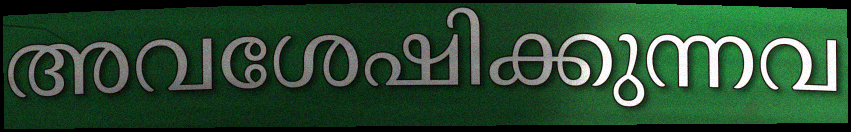
അവശേഷിക്കുന്നവ